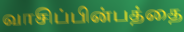
வாசிப்பின்பத்தை